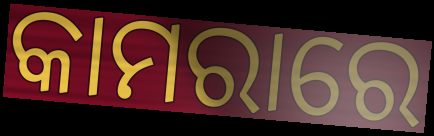
କାମରାରେ